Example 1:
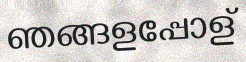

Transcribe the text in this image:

ഞങ്ങളപ്പോള്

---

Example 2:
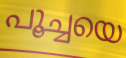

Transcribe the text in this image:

പൂച്ചയെ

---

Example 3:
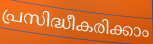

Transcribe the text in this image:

പ്രസിദ്ധീകരിക്കാം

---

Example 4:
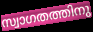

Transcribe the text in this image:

സ്വാഗതത്തിനു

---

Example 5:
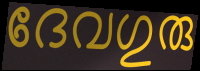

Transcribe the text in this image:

ദേവഗുരു